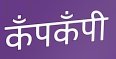
कँपकँपी